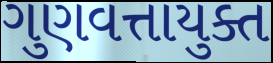
ગુણવત્તાયુક્ત